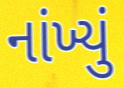
નાંખ્યું